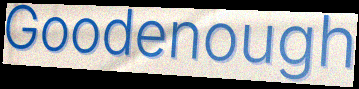
Goodenough